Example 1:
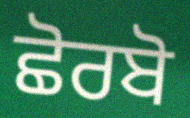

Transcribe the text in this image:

ਛੋਰਬੋ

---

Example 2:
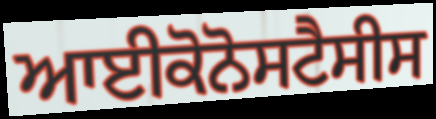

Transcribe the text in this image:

ਆਈਕੋਨੋਸਟੈਸੀਸ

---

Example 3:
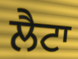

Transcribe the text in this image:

ਲੈਟਾ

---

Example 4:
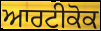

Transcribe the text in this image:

ਆਰਟੀਕੋਕ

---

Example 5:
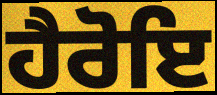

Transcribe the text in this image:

ਹੈਰੋਇ